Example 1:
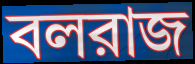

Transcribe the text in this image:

বলরাজ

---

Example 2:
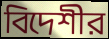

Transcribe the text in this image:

বিদেশীর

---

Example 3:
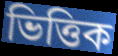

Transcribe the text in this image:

ভিত্তিক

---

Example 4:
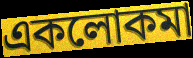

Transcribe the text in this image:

একলোকমা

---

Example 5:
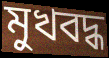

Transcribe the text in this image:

মুখবদ্ধ